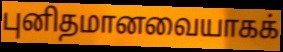
புனிதமானவையாகக்